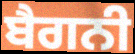
ਬੈਗਨੀ